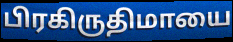
பிரகிருதிமாயை